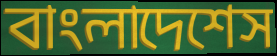
বাংলাদেশেস